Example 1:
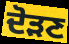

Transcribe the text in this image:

ਦੋੜਣ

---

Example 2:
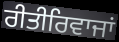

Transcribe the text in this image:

ਰੀਤੀਰਿਵਾਜਾਂ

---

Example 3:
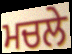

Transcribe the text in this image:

ਮਚਲੇ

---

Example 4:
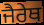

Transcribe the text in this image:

ਜੈਰੇਥ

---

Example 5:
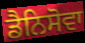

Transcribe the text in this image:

ਡੈਨਿਸੋਵਾ